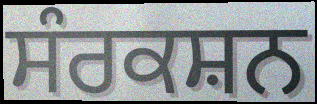
ਸੰਰਕਸ਼ਨ